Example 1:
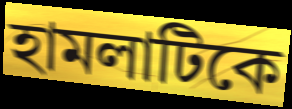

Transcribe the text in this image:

হামলাটিকে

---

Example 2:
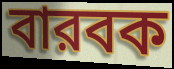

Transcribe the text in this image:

বারবক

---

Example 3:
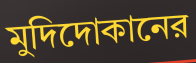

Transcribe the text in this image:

মুদিদোকানের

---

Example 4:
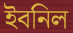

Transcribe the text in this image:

ইবনিল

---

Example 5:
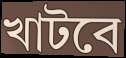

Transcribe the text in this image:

খাটবে